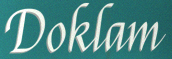
Doklam